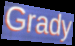
Grady